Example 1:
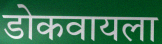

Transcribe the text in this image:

डोकवायला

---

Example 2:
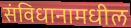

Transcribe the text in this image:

संविधानामधील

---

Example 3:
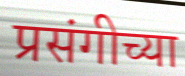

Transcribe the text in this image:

प्रसंगीच्या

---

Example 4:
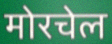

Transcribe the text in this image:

मोरचेल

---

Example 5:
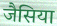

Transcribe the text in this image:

जैसिया